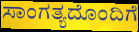
ಸಾಂಗತ್ಯದೊಂದಿಗೆ